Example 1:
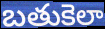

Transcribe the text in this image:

బతుకెలా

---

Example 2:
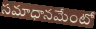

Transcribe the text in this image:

సమాధానమేంటో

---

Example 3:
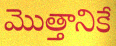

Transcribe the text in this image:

మొత్తానికే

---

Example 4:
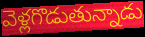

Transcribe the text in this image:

వెళ్లగొడుతున్నాడు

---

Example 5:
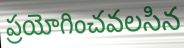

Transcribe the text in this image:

ప్రయోగించవలసిన